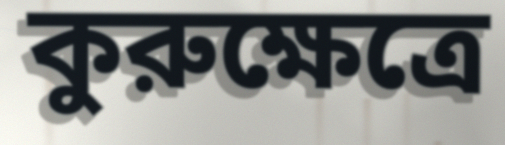
কুরুক্ষেত্রে